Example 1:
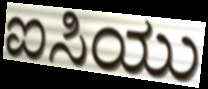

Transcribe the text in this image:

ಐಸಿಯು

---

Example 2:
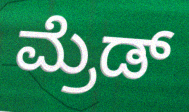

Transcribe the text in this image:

ಮ್ರೆಡ್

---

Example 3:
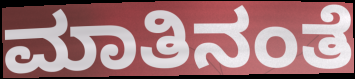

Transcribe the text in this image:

ಮಾತಿನಂತೆ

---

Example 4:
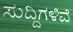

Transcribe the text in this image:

ಸುದ್ದಿಗಳಿವೆ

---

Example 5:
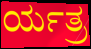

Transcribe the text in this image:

ರ್ಯತ್ರ